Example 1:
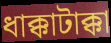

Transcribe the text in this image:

ধাক্কাটাক্কা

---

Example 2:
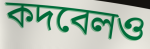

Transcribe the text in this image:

কদবেলও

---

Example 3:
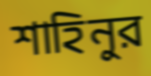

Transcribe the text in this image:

শাহিনুর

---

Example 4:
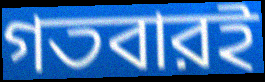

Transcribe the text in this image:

গতবারই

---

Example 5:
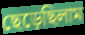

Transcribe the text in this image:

ছেড়েছিলাম